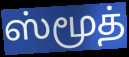
ஸ்மூத்